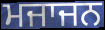
ਮਜਾਜਨ